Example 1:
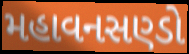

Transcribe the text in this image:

મહાવનસણ્ડો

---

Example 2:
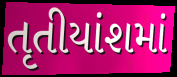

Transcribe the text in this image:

તૃતીયાંશમાં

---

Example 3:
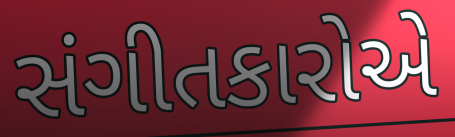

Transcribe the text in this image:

સંગીતકારોએ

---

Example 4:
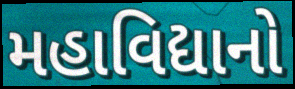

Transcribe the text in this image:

મહાવિદ્યાનો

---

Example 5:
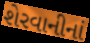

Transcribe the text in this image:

શેરવાનીનાં